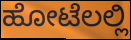
ಹೋಟೆಲಲ್ಲಿ